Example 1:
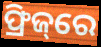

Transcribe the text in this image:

ଫ୍ରିଜ୍‌ରେ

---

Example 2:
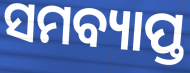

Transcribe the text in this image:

ସମବ୍ୟାପ୍ତ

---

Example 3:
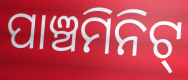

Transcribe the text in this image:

ପାଞ୍ଚମିନିଟ୍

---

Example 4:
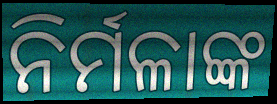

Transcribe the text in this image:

ନିର୍ମଳାଙ୍କ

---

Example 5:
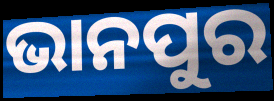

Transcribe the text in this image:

ଭାନପୁର